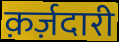
क़र्ज़दारी